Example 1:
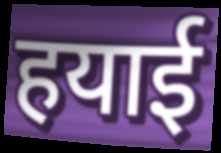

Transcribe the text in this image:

हयाई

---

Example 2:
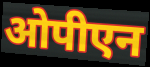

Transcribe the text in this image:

ओपीएन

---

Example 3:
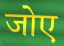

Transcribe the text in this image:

जोए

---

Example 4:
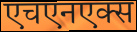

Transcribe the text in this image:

एचएनएक्स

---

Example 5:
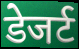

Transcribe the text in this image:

डेजर्ट